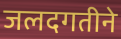
जलदगतीने